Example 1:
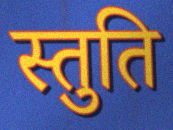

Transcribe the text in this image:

स्तुति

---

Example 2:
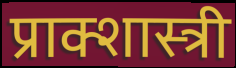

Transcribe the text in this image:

प्राक्शास्त्री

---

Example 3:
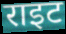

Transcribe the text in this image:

राइट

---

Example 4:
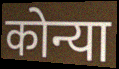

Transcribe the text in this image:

कोन्या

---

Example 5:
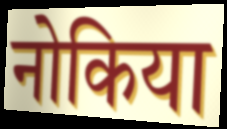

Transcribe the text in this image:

नोकिया